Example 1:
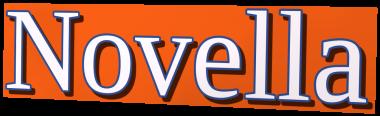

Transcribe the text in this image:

Novella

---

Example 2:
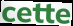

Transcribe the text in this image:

cette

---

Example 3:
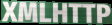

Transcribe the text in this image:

XMLHTTP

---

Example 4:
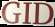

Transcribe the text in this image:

GID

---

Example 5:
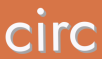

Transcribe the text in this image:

circ